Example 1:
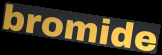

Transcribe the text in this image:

bromide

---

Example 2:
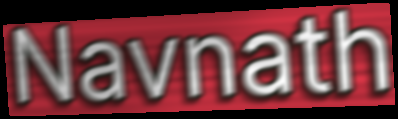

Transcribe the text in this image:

Navnath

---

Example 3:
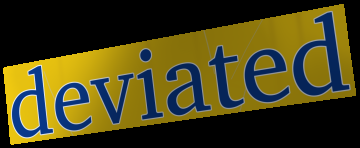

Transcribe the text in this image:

deviated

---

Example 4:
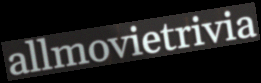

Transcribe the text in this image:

allmovietrivia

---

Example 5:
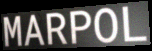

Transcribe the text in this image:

MARPOL